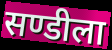
सण्डीला